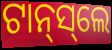
ଟାନ୍‌ସ୍‌ଲେ